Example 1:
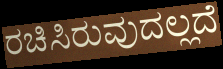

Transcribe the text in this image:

ರಚಿಸಿರುವುದಲ್ಲದೆ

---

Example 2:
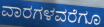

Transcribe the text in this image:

ವಾರಗಳವರೆಗೂ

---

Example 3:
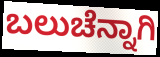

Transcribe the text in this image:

ಬಲುಚೆನ್ನಾಗಿ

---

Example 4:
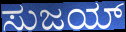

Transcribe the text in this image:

ಸುಜಯ್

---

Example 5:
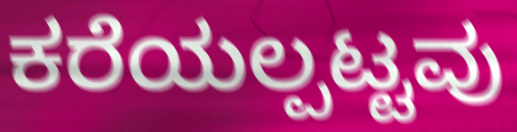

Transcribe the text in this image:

ಕರೆಯಲ್ಪಟ್ಟವು